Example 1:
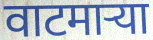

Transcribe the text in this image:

वाटमाऱ्या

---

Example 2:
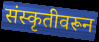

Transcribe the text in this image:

संस्कृतीवरून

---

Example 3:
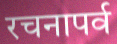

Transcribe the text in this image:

रचनापर्व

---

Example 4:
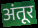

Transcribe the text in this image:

अंतूर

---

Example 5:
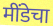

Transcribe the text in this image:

मींडेचा